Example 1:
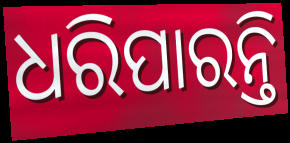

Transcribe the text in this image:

ଧରିପାରନ୍ତି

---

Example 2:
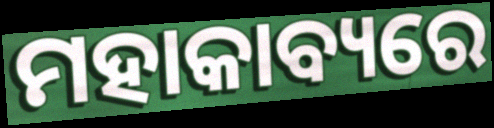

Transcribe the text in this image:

ମହାକାବ୍ୟରେ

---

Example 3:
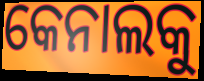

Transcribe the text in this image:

କେନାଲକୁ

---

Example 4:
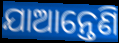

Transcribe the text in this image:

ଯାଆନ୍ତେଣି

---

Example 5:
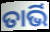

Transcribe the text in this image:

ତାର୍ଭି